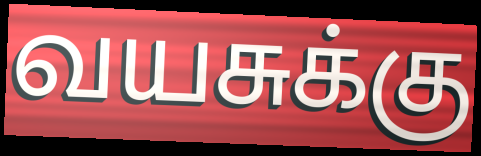
வயசுக்கு